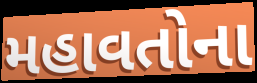
મહાવતોના